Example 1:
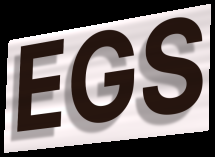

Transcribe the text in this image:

EGS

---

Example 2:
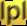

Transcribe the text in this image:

Ipl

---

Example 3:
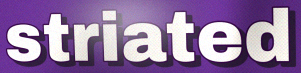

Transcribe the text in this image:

striated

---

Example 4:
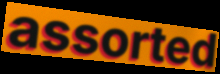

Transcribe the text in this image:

assorted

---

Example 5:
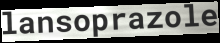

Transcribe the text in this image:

lansoprazole